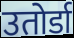
उतोर्डा